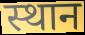
स्थान